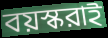
বয়স্করাই